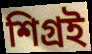
শিগ্রই